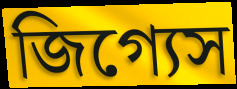
জিগ্যেস